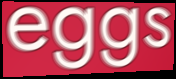
eggs